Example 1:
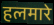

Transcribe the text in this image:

हलमारे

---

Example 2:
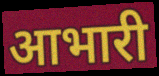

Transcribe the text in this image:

आभारी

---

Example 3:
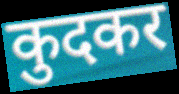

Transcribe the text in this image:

कुदकर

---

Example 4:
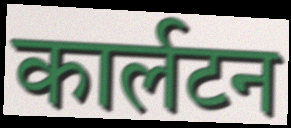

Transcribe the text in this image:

कार्लटन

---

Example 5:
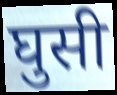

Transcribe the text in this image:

घुसी